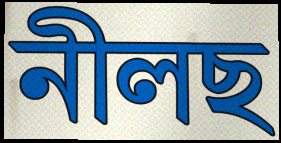
নীলছ